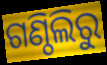
ଗଣ୍ଠିଲିରୁ